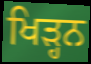
ਖਿੜ੍ਹਨ